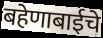
बहेणाबाईचे